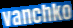
vanchko